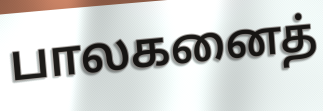
பாலகனைத்